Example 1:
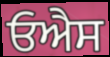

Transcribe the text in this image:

ਓਐਸ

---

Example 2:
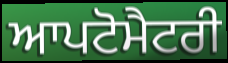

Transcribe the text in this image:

ਆਪਟੋਮੈਟਰੀ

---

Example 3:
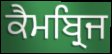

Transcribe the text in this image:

ਕੈਮਬ੍ਰਿਜ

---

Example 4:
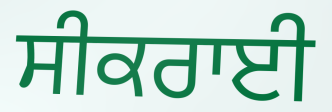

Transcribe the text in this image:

ਸੀਕਰਾਈ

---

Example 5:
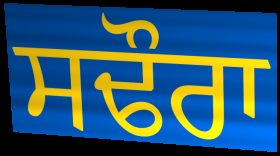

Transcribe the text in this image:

ਸਢੌਰਾ